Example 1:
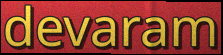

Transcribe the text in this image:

devaram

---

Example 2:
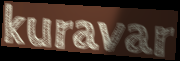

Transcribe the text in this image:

kuravar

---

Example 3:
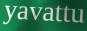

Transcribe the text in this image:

yavattu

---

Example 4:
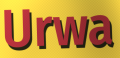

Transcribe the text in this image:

Urwa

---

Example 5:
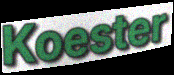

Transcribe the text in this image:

Koester